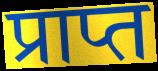
प्राप्‍त